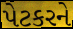
પેટકરને